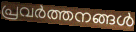
പ്രവർത്തനങ്ങൾ